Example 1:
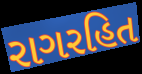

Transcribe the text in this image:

રાગરહિત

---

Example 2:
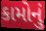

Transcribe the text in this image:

કામોનું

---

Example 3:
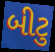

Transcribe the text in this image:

બીટુ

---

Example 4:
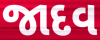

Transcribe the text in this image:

જાદવ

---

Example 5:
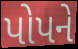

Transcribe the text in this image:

પોપને